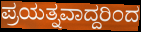
ಪ್ರಯತ್ನವಾದ್ದರಿಂದ